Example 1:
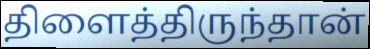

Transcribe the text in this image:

திளைத்திருந்தான்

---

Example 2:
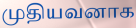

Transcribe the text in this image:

முதியவனாக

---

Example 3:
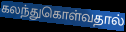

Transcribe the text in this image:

கலந்துகொள்வதால்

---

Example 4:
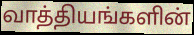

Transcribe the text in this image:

வாத்தியங்களின்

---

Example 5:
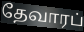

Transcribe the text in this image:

தேவாரப்